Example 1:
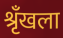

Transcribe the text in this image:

श्रृँखला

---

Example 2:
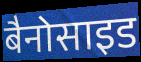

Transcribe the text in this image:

बैनोसाइड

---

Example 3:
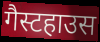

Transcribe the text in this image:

गैस्टहाउस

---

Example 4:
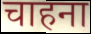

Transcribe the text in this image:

चाहना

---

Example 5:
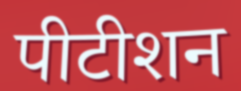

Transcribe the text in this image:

पीटीशन